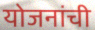
योजनांची